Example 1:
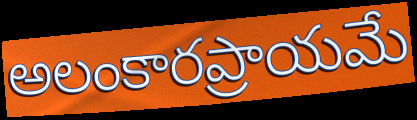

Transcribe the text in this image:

అలంకారప్రాయమే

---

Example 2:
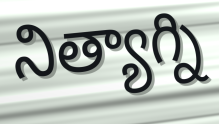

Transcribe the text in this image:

నిత్యాగ్ని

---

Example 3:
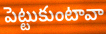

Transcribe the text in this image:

పెట్టుకుంటావా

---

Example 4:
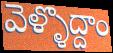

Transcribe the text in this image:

వెళ్ళొద్దాం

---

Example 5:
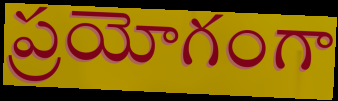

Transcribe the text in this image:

ప్రయోగంగా